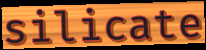
silicate